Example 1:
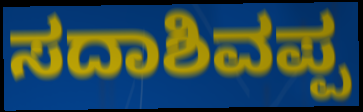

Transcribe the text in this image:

ಸದಾಶಿವಪ್ಪ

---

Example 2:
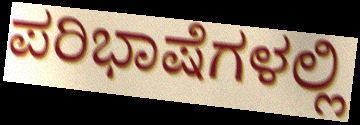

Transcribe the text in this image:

ಪರಿಭಾಷೆಗಳಲ್ಲಿ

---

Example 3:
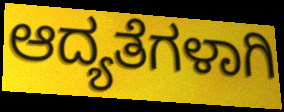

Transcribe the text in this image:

ಆದ್ಯತೆಗಳಾಗಿ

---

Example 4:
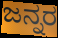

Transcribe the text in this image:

ಜನ್ನರ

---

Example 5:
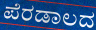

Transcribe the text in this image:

ಪೆರಡಾಲದ